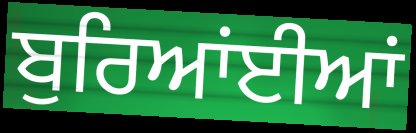
ਬੁਰਿਆਂਈਆਂ